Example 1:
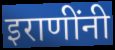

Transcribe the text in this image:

इराणींनी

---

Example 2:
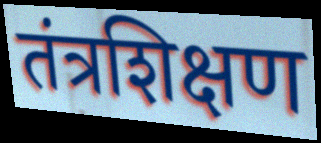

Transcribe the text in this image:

तंत्रशिक्षण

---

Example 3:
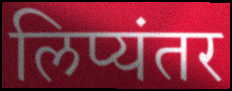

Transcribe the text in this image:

लिप्यंतर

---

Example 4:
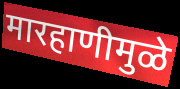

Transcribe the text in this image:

मारहाणीमुळे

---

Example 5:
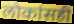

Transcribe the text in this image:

लोकांसही